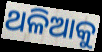
ଥଳିଆକୁ